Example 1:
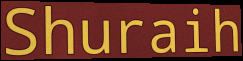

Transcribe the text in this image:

Shuraih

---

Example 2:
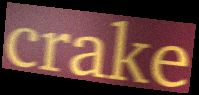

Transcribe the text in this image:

crake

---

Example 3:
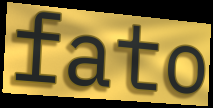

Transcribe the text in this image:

fato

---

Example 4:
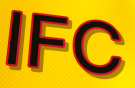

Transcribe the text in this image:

IFC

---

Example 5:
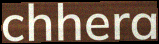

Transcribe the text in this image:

chhera